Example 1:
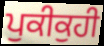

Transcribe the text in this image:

ਪੁਕੀਕੁਹੀ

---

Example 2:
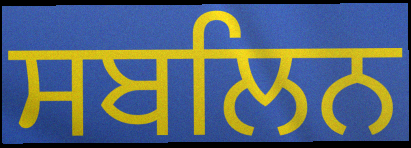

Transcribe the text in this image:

ਸਬਲਿਨ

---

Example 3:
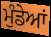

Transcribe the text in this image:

ਮੁੰਡੇਆਂ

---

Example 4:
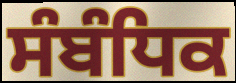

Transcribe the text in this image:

ਸੰਬੰਧਿਕ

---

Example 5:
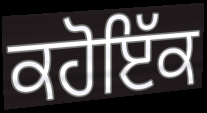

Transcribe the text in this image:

ਕਹੋਇੱਕ